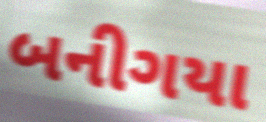
બનીગયા